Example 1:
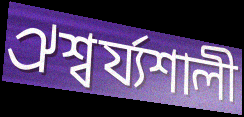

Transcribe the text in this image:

ঐশ্বর্য্যশালী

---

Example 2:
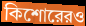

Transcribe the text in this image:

কিশোরেরও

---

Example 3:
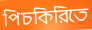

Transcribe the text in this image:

পিচকিরিতে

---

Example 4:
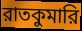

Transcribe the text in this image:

রাতকুমারি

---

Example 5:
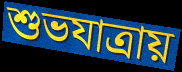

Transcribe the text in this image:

শুভযাত্রায়